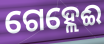
ଗେହ୍ଲେଈ